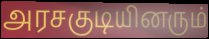
அரசகுடியினரும்